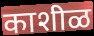
काशीळ